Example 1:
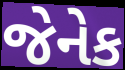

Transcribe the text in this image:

જેનેક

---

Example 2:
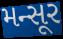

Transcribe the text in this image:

મન્સૂર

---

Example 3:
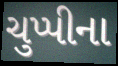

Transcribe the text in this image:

ચુપ્પીના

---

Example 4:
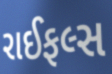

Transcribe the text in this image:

રાઈફલ્સ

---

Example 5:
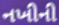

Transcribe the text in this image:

નખીની